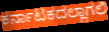
ಕರ್ನಾಟಕದಲ್ಲಾಗಲಿ